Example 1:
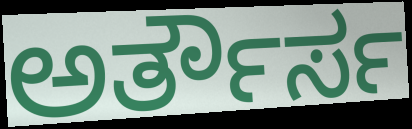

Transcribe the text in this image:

ಅರ್ತೌರ್ಸ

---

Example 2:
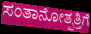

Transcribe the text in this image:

ಸಂತಾನೋತ್ಪತ್ತಿಗೆ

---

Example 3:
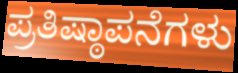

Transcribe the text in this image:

ಪ್ರತಿಷ್ಠಾಪನೆಗಳು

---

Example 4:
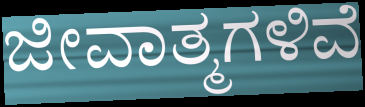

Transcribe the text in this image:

ಜೀವಾತ್ಮಗಳಿವೆ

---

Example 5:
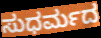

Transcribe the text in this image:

ಸುಧರ್ಮದ